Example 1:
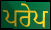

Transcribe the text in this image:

ਪਰੇਪ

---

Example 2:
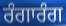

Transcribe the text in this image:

ਰੰਗਾਰੰਗ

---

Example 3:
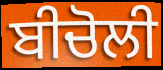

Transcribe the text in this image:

ਬੀਚੋਲੀ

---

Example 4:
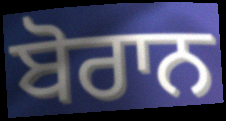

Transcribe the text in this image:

ਬੋਰਾਨ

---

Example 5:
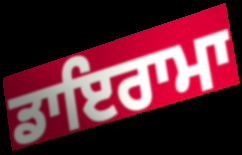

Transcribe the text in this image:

ਡਾਇਰਾਮਾ